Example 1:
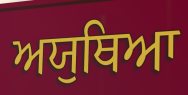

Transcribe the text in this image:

ਅਯੁਥਿਆ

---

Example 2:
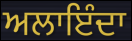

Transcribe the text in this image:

ਅਲਾਇੰਦਾ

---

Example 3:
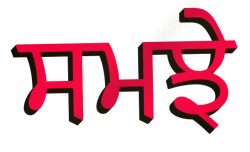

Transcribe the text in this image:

ਸਮਝੇ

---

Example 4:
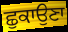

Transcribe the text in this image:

ਛੁਕਾਉਣਾ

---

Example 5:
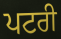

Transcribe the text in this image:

ਪਟਰੀ